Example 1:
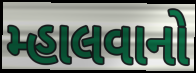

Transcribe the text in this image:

મ્હાલવાનો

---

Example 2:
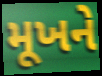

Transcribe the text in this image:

મૂખને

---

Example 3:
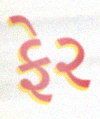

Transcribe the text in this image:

ફેર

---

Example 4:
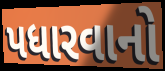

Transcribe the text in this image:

પધારવાનો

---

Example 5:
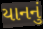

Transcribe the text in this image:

યાનનું